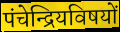
पंचेन्द्रियविषयों